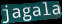
jagala